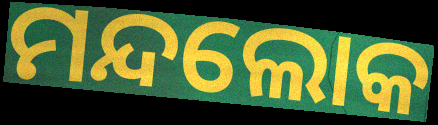
ମନ୍ଦଲୋକ